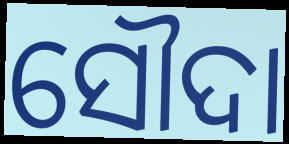
ସୌଦା